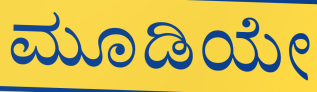
ಮೂಡಿಯೇ